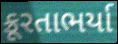
ક્રૂરતાભર્યા